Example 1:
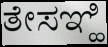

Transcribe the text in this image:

ತೇಸಞ್ಹಿ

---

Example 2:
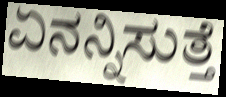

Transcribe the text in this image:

ಏನನ್ನಿಸುತ್ತೆ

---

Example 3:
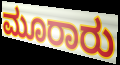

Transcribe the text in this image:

ಮೂರಾರು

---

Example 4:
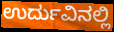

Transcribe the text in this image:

ಉರ್ದುವಿನಲ್ಲಿ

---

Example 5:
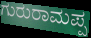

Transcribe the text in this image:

ಗುರುರಾಮಪ್ಪ